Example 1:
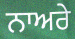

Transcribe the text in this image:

ਨਾਅਰੇ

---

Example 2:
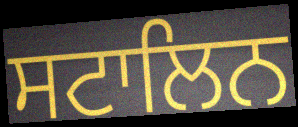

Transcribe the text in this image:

ਸਟਾਲਿਨ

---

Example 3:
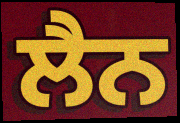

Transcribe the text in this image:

ਲੈਨ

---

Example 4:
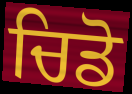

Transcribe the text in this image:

ਚਿਡੋ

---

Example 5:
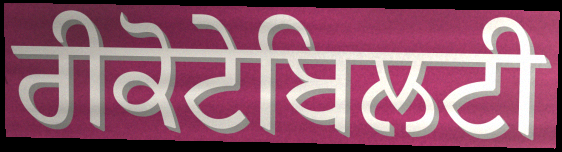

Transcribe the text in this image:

ਰੀਕੋਟੇਬਿਲਟੀ